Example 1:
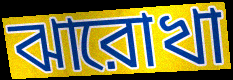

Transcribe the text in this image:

ঝারোখা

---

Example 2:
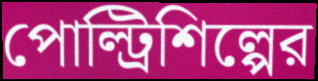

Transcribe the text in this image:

পোল্ট্রিশিল্পের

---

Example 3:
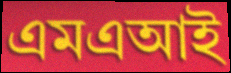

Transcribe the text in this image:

এমএআই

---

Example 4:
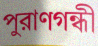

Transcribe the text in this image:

পুরাণগন্ধী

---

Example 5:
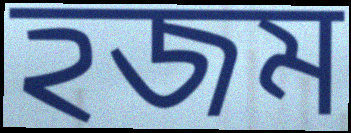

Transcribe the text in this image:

হজম